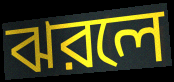
ঝরলে